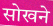
सोखने